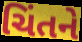
ચિંતને